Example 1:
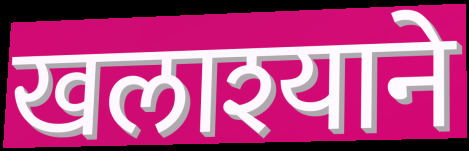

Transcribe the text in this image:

खलाश्याने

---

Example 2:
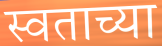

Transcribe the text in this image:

स्वताच्या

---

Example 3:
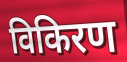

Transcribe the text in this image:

विकिरण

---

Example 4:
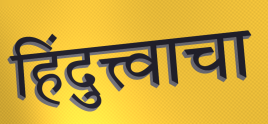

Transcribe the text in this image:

हिंदुत्त्वाचा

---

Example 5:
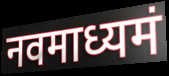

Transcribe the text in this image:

नवमाध्यमं